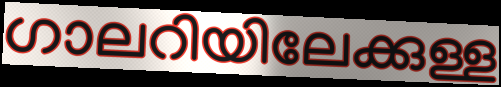
ഗാലറിയിലേക്കുള്ള